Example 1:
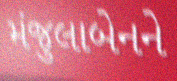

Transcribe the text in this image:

મંજુલાબેનને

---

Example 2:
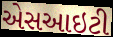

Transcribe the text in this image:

એસઆઇટી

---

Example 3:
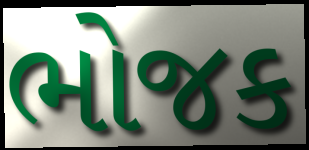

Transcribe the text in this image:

ભોજક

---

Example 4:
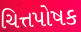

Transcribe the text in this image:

ચિત્તપોષક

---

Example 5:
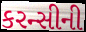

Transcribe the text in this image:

કરન્સીની